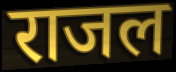
राजल